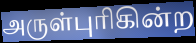
அருள்புரிகின்ற